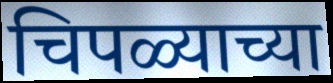
चिपळ्याच्या